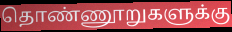
தொண்ணூறுகளுக்கு